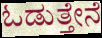
ಓಡುತ್ತೇನೆ